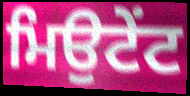
ਮਿਉਟੇਂਟ